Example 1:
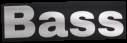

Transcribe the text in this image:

Bass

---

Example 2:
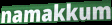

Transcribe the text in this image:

namakkum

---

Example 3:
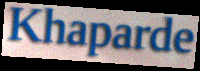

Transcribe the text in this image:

Khaparde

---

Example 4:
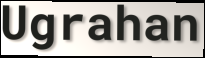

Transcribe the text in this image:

Ugrahan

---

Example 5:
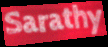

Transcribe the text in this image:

Sarathy